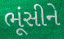
ભૂંસીને